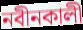
নবীনকালী